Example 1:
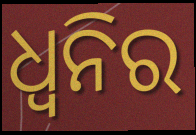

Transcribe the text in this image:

ଧ୍ବନିର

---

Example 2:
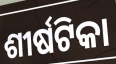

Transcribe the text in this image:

ଶୀର୍ଷଟିକା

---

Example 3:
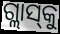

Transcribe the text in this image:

ଗ୍ଲାସ୍‌କୁ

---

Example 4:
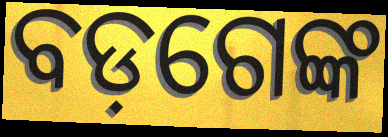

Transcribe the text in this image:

ବଡ଼ଗେଙ୍କ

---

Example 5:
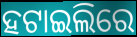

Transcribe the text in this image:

ହଟାଇଲିରେ